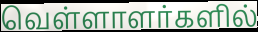
வெள்ளாளர்களில்